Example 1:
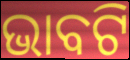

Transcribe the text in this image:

ଭାବଟି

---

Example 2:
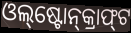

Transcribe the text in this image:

ଓଲ୍‌ଷ୍ଟୋନ୍‌କ୍ରାଫ୍‌ଟ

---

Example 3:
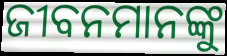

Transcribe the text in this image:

ଜୀବନମାନଙ୍କୁ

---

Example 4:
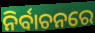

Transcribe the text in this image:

ନିର୍ବାଚନରେ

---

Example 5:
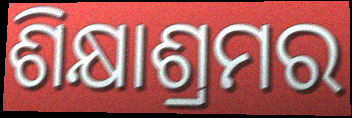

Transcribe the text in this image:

ଶିକ୍ଷାଶ୍ରମର